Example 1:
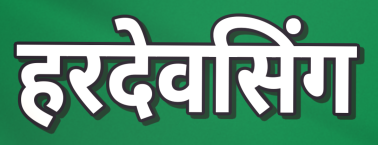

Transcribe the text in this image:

हरदेवसिंग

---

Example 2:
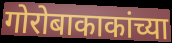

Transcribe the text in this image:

गोरोबाकाकांच्या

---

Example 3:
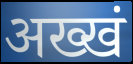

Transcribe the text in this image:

अख्खं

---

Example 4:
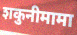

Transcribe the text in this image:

शकुनीमामा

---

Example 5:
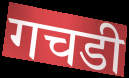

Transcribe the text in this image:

गचडी